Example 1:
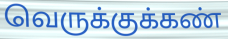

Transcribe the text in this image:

வெருக்குக்கண்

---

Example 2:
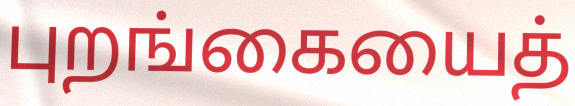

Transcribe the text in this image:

புறங்கையைத்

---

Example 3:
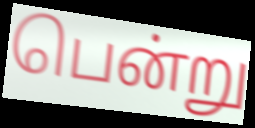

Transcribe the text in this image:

பென்று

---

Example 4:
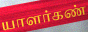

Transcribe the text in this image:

யாளர்கண்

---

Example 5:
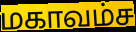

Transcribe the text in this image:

மகாவம்ச